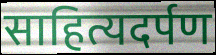
साहित्यदर्पण